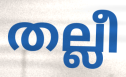
തല്ലീ